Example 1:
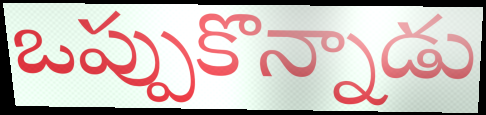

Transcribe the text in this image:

ఒప్పుకొన్నాడు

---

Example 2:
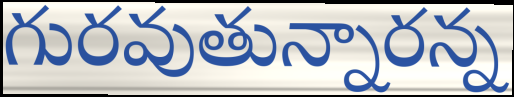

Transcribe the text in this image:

గురవుతున్నారన్న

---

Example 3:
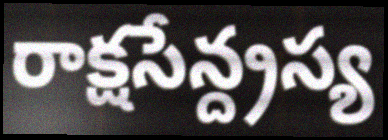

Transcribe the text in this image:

రాక్షసేన్ద్రస్య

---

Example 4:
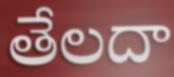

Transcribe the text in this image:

తేలదా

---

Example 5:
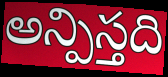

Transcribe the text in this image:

అన్పిస్తది